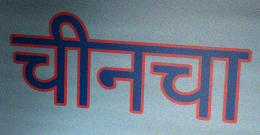
चीनचा